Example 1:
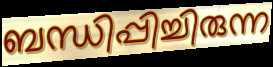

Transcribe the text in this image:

ബന്ധിപ്പിച്ചിരുന്ന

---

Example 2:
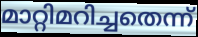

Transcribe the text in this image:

മാറ്റിമറിച്ചതെന്ന്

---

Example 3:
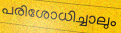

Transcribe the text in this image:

പരിശോധിച്ചാലും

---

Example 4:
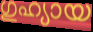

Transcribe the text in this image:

ഗുഹ്യായ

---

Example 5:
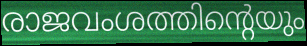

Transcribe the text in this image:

രാജവംശത്തിന്റെയും